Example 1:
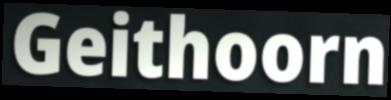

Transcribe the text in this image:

Geithoorn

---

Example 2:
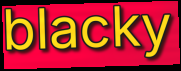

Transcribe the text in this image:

blacky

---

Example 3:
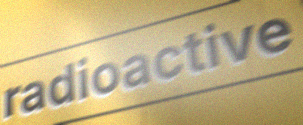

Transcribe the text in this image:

radioactive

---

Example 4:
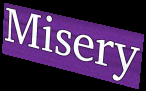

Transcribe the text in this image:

Misery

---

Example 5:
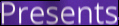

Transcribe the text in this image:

Presents